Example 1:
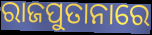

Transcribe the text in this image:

ରାଜପୁତାନାରେ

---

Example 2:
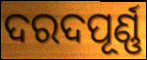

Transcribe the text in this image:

ଦରଦପୂର୍ଣ୍ଣ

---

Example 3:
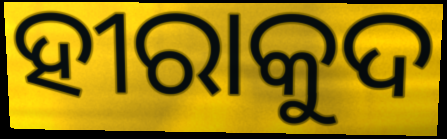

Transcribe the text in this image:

ହୀରାକୁଦ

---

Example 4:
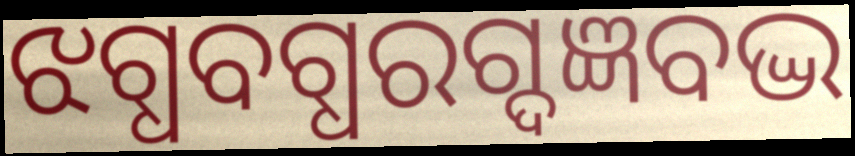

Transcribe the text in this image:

ଝଗ୍ଧବଗ୍ଧରଗ୍ଦଜ୍ଞବଦ୍ଭ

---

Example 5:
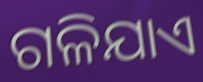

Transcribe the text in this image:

ଗଳିଯାଏ